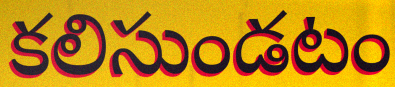
కలిసుండటం